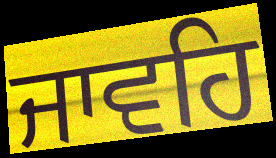
ਜਾਵਹਿ